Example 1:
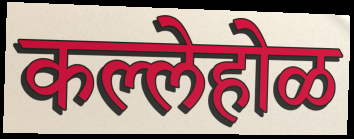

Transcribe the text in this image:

कल्लेहोळ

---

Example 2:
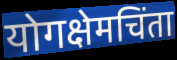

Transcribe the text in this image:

योगक्षेमचिंता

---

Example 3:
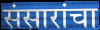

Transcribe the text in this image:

संसारांचा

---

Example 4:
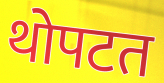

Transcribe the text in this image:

थोपटत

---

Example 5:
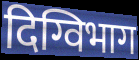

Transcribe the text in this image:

दिग्विभाग